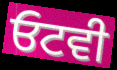
ਓਟਵੀ